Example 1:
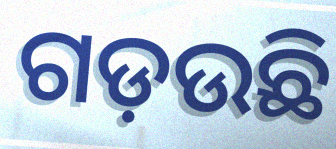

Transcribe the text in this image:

ଗଡ଼ଉଛି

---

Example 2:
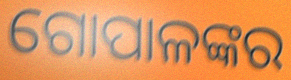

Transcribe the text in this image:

ଗୋପାଳଙ୍କର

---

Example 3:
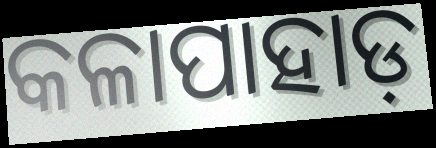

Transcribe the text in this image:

କଳାପାହାଡ଼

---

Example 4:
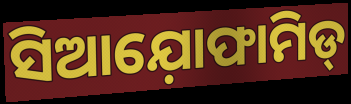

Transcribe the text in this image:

ସିଆଯ଼ୋଫାମିଡ୍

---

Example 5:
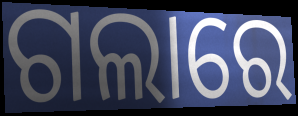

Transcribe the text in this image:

ଗଲାରେ